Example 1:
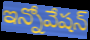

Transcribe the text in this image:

ఇన్నోవేషన్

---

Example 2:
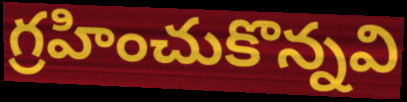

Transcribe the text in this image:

గ్రహించుకొన్నవి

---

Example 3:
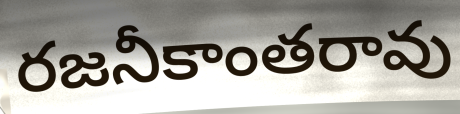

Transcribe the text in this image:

రజనీకాంతరావు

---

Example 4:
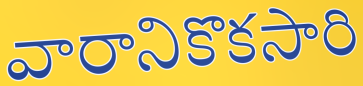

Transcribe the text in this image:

వారానికొకసారి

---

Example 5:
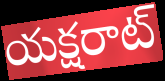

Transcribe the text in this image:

యక్షరాట్